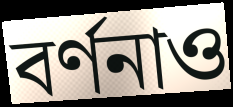
বর্ণনাও